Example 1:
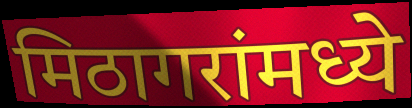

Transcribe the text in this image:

मिठागरांमध्ये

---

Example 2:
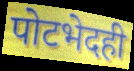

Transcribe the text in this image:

पोटभेदही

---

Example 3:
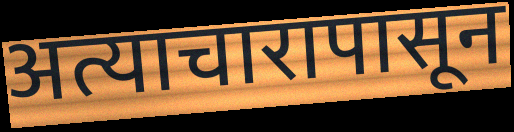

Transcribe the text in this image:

अत्याचारापासून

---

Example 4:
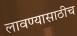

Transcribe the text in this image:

लावण्यासाठीच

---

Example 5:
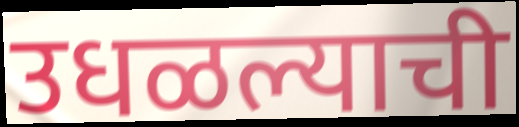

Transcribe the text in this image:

उधळल्याची